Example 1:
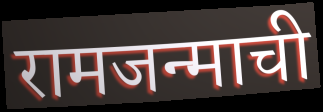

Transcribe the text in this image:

रामजन्माची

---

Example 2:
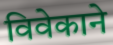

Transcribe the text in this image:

विवेकाने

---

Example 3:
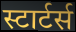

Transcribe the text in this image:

स्टार्टर्स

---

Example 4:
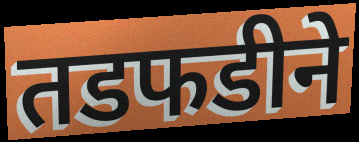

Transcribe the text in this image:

तडफडीने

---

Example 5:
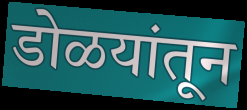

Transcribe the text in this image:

डोळयांतून